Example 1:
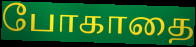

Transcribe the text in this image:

போகாதை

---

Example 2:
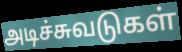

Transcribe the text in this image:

அடிச்சுவடுகள்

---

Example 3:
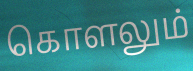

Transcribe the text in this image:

கொளலும்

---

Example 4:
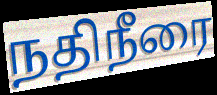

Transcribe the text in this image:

நதிநீரை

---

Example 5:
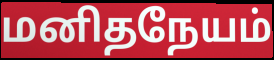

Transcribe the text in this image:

மனிதநேயம்